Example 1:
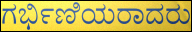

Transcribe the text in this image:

ಗರ್ಭಿಣಿಯರಾದರು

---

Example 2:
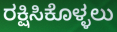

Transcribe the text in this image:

ರಕ್ಷಿಸಿಕೊಳ್ಳಲು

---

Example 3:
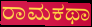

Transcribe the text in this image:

ರಾಮಕಥಾ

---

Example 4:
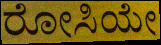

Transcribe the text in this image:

ರೋಸಿಯೇ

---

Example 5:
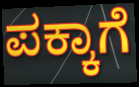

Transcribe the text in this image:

ಪಕ್ಕಾಗೆ